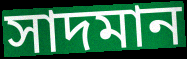
সাদমান